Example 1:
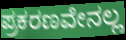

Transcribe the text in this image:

ಪ್ರಕರಣವೇನಲ್ಲ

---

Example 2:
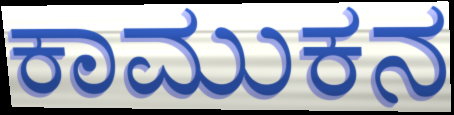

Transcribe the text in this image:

ಕಾಮುಕನ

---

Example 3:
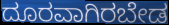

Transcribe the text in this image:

ದೂರವಾಗಿರಬೇಡ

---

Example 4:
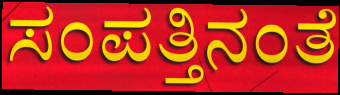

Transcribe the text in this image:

ಸಂಪತ್ತಿನಂತೆ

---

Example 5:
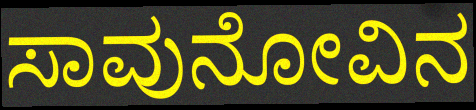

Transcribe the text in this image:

ಸಾವುನೋವಿನ